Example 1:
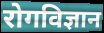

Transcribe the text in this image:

रोगविज्ञान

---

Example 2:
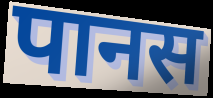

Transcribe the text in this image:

पानस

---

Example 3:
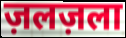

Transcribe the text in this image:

ज़लज़ला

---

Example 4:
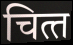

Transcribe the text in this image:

चित्‍त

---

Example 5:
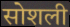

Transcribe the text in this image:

सोशली